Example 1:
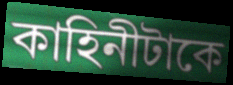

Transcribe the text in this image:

কাহিনীটাকে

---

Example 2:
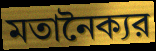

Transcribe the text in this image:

মতানৈক্যর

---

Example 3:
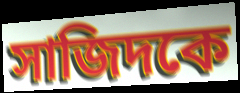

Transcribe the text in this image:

সাজিদকে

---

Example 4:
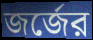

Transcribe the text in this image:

জর্জের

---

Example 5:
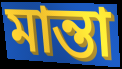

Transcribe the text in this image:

মান্তা